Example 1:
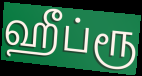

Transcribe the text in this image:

ஹீப்ரூ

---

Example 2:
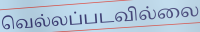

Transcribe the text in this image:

வெல்லப்படவில்லை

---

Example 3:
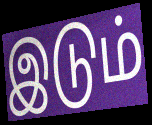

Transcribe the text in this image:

இடும்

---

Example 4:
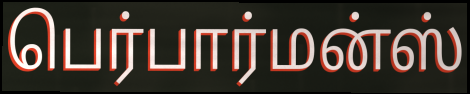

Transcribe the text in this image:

பெர்பார்மன்ஸ்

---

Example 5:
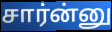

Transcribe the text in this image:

சார்ன்னு